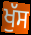
ਖੁੱਸ